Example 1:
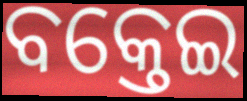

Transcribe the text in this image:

ବକ୍ତେଇ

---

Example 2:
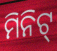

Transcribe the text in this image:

ମିନିଟ୍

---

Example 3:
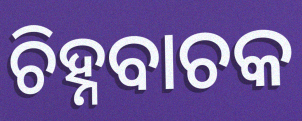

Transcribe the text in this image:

ଚିହ୍ନବାଚକ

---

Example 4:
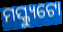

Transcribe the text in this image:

ମସ୍କ୍ୟୁଟୋ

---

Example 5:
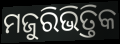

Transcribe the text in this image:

ମଜୁରିଭିତ୍ତିକ